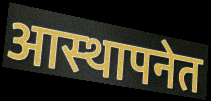
आस्थापनेत